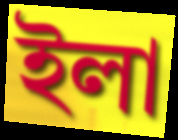
ইলা